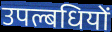
उपल्बधियों